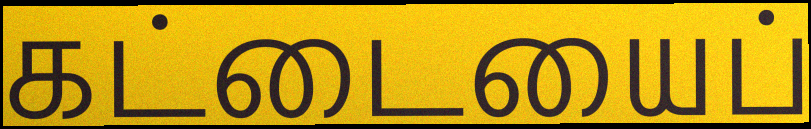
கட்டையைப்